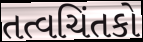
તત્વચિંતકો